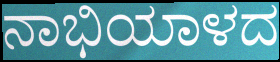
ನಾಭಿಯಾಳದ